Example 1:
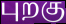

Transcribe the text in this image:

புறகு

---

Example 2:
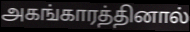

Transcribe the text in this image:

அகங்காரத்தினால்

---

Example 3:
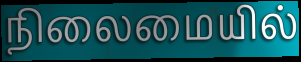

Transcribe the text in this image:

நிலைமையில்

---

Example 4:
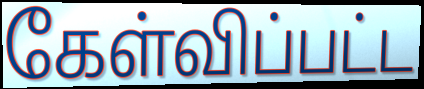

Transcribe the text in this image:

கேள்விப்பட்ட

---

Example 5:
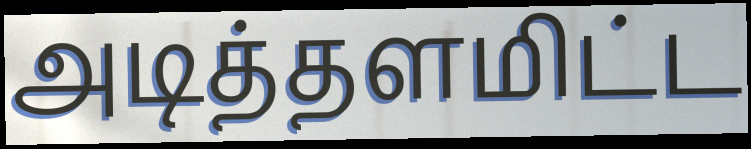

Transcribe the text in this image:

அடித்தளமிட்ட